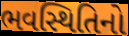
ભવસ્થિતિનો